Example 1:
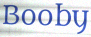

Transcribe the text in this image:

Booby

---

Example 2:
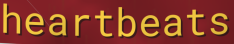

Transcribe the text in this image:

heartbeats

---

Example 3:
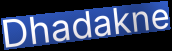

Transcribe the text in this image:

Dhadakne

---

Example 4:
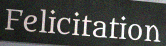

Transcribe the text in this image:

Felicitation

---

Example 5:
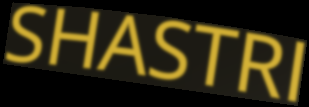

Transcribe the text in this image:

SHASTRI